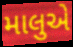
માલુએ